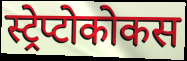
स्ट्रेप्टोकोकस